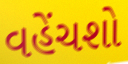
વહેંચશો